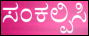
ಸಂಕಲ್ಪಿಸಿ